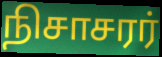
நிசாசரர்